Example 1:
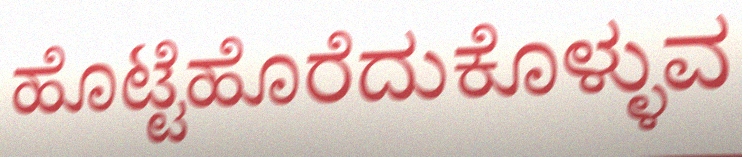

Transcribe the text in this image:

ಹೊಟ್ಟೆಹೊರೆದುಕೊಳ್ಳುವ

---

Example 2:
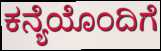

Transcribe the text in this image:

ಕನ್ಯೆಯೊಂದಿಗೆ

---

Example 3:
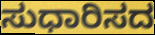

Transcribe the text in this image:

ಸುಧಾರಿಸದ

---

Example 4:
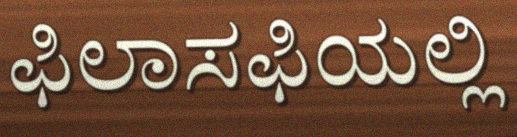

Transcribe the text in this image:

ಫಿಲಾಸಫಿಯಲ್ಲಿ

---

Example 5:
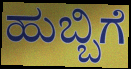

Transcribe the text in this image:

ಹುಬ್ಬಿಗೆ